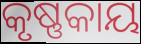
କୃଷ୍ଣକାୟ